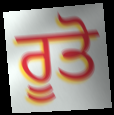
ਰੂਤੋ